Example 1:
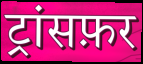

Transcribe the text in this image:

ट्रांसफ़र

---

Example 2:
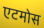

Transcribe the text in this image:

एटमोस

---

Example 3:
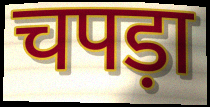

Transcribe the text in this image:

चपड़ा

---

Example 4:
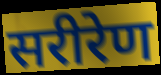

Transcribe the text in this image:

सरीरेण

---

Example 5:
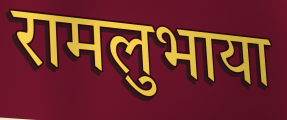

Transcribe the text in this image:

रामलुभाया